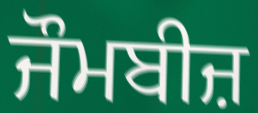
ਜੌਮਬੀਜ਼